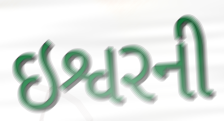
ઇશ્વરની